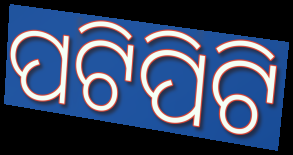
ପଟିପିଟି